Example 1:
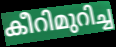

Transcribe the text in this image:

കീറിമുറിച്ച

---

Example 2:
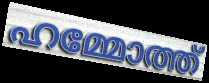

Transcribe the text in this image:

ഹമ്മോത്ത്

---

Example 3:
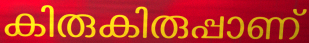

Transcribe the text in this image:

കിരുകിരുപ്പാണ്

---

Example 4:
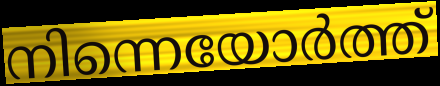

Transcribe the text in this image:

നിന്നെയോർത്ത്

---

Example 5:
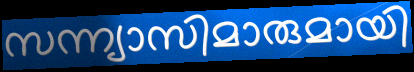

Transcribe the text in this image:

സന്ന്യാസിമാരുമായി